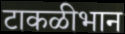
टाकळीभान